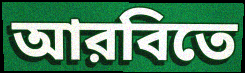
আরবিতে